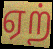
ஏற்